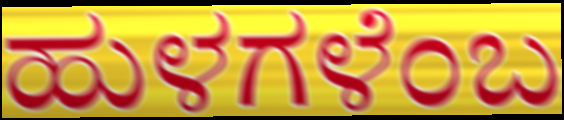
ಹುಳಗಳೆಂಬ